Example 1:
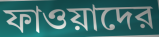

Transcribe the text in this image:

ফাওয়াদের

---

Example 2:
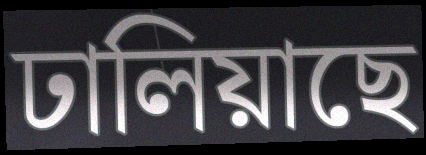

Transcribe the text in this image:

ঢালিয়াছে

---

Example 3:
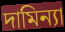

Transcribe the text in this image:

দামিন্যা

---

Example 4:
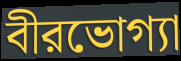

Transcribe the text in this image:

বীরভোগ্যা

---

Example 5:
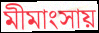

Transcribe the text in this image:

মীমাংসায়